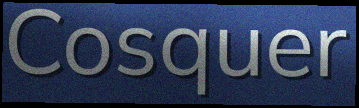
Cosquer